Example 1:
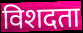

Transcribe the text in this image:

विशदता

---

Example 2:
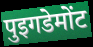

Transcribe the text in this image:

पुइगडेमोंट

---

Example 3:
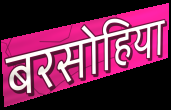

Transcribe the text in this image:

बरसोहिया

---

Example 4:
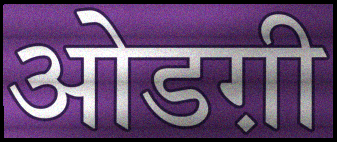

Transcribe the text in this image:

ओडग़ी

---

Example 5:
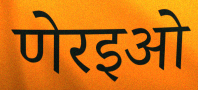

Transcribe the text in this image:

णेरइओ